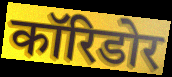
कॉरिडोर